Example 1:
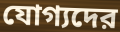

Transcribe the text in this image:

যোগ্যদের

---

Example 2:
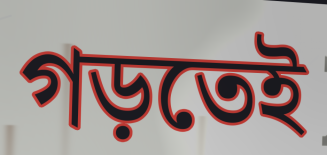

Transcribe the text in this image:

গড়তেই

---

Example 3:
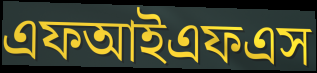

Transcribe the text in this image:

এফআইএফএস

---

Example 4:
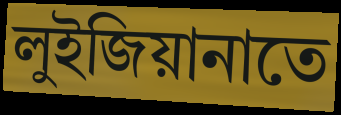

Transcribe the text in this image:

লুইজিয়ানাতে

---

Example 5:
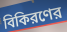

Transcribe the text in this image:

বিকিরণের